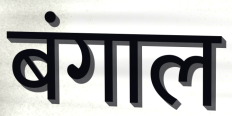
बंगाल